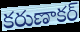
కరుణాకర్